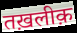
तख़लीक़